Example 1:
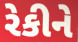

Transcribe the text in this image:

રેકીને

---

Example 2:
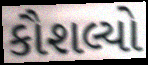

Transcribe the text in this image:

કૌશલ્યો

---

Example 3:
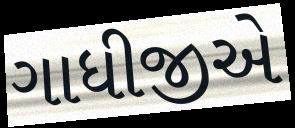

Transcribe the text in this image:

ગાધીજીએ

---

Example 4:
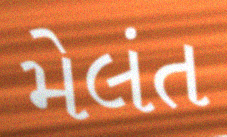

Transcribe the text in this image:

મેલંત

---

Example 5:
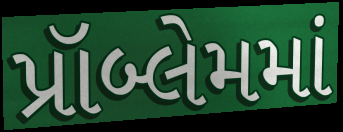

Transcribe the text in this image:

પ્રૉબ્લેમમાં